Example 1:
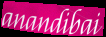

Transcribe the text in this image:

anandibai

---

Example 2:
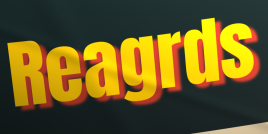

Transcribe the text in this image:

Reagrds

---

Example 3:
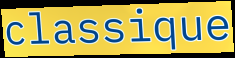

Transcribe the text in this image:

classique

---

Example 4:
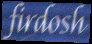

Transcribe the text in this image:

firdosh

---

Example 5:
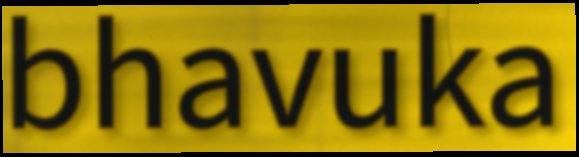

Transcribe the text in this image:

bhavuka